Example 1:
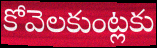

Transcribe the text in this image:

కోవెలకుంట్లకు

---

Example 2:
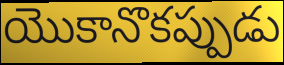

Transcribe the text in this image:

యొకానొకప్పుడు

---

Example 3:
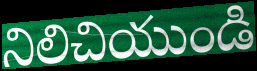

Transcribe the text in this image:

నిలిచియుండి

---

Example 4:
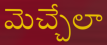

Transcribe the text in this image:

మెచ్చేలా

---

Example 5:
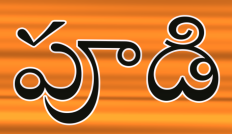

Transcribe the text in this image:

పూడి